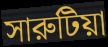
সারুটিয়া